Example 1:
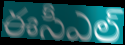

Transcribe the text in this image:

ఈసీఎల్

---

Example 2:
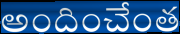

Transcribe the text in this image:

అందించేంత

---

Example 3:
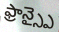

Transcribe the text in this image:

ఫ్రాన్స్పై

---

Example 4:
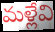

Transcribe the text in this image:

మళ్లేవి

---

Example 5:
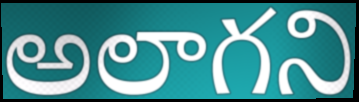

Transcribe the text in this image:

అలాగని